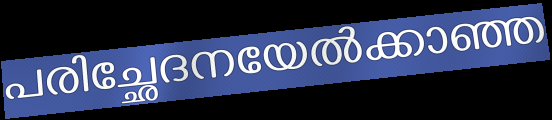
പരിച്ഛേദനയേൽക്കാഞ്ഞ